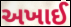
અખાઈ